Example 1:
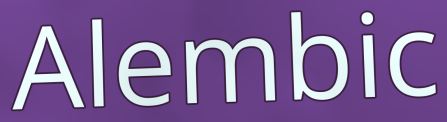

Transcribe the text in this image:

Alembic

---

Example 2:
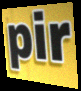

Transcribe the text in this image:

pir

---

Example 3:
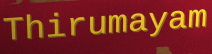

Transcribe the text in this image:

Thirumayam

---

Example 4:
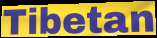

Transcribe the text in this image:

Tibetan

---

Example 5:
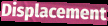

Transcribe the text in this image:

Displacement